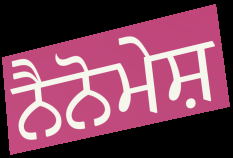
ਨੈਨੋਮੇਸ਼